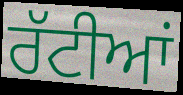
ਰੱਟੀਆਂ